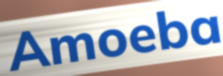
Amoeba